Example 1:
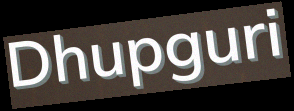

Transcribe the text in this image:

Dhupguri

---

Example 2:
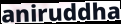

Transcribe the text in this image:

aniruddha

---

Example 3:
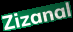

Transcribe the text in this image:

Zizanal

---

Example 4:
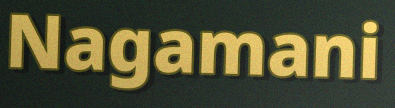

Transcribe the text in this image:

Nagamani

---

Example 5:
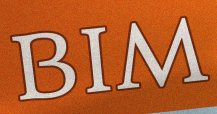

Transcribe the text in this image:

BIM